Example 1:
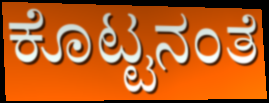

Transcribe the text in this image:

ಕೊಟ್ಟನಂತೆ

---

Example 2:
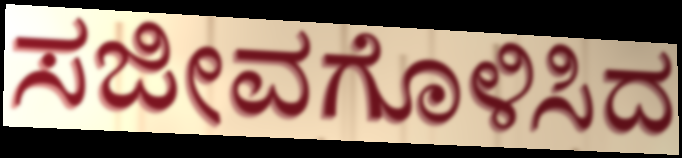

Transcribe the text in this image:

ಸಜೀವಗೊಳಿಸಿದ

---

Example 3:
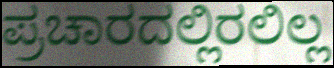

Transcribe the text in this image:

ಪ್ರಚಾರದಲ್ಲಿರಲಿಲ್ಲ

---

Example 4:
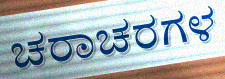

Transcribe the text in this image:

ಚರಾಚರಗಳ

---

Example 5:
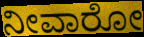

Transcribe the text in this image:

ನೀವಾರೋ